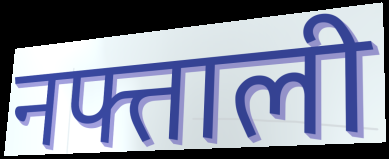
नफ्ताली